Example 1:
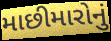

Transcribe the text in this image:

માછીમારોનું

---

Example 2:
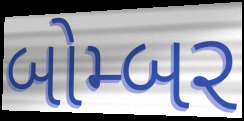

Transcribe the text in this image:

બોમ્બર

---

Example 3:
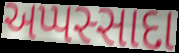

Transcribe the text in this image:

અપ્પસ્સાદા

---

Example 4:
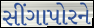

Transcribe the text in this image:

સીંગાપોરને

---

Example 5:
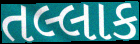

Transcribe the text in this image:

તલ્લાક